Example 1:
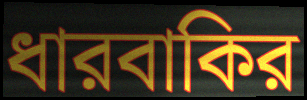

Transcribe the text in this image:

ধারবাকির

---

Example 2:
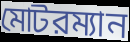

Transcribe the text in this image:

মোটরম্যান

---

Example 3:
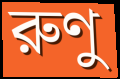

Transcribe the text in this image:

রুণু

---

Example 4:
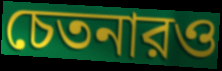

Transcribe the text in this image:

চেতনারও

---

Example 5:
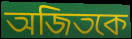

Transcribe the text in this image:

অজিতকে